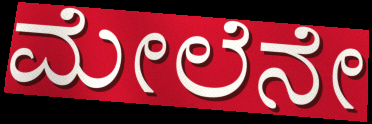
ಮೇಲೆನೇ